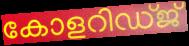
കോളറിഡ്ജ്